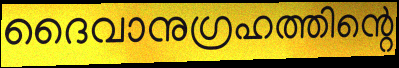
ദൈവാനുഗ്രഹത്തിന്റെ